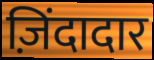
ज़िंदादार